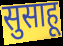
सुसाहू